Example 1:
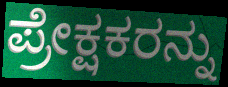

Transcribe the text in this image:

ಪ್ರೇಕ್ಷಕರನ್ನು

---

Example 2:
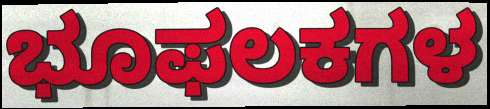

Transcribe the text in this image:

ಭೂಫಲಕಗಳ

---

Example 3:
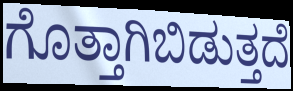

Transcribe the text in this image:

ಗೊತ್ತಾಗಿಬಿಡುತ್ತದೆ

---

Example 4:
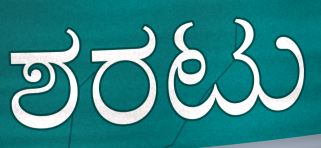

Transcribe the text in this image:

ಶರಟು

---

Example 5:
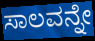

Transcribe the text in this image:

ಸಾಲವನ್ನೇ